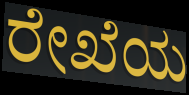
ರೇಖೆಯ